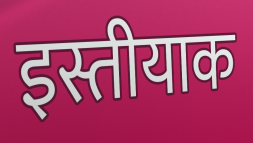
इस्तीयाक